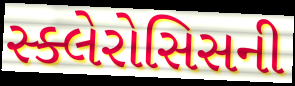
સ્ક્લેરોસિસની